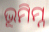
ଭୂମିମ୍ନ